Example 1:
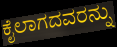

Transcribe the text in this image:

ಕೈಲಾಗದವರನ್ನು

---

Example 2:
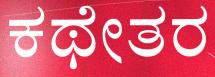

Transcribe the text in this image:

ಕಥೇತರ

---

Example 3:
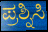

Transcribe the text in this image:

ಪ್ರಶ್ನಿಸಿ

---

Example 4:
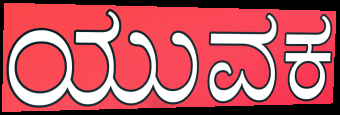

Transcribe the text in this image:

ಯುವಕ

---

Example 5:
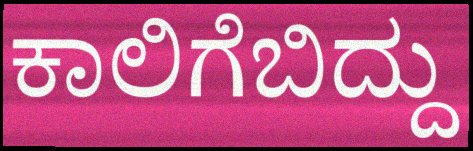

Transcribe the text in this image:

ಕಾಲಿಗೆಬಿದ್ದು